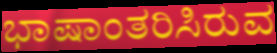
ಭಾಷಾಂತರಿಸಿರುವ